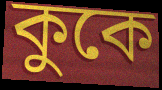
কুকে